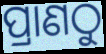
ପ୍ରାଣଠୁ